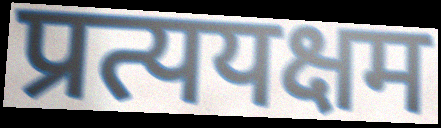
प्रत्ययक्षम